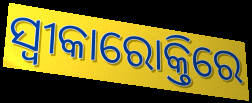
ସ୍ୱୀକାରୋକ୍ତିରେ